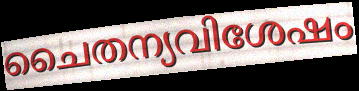
ചൈതന്യവിശേഷം